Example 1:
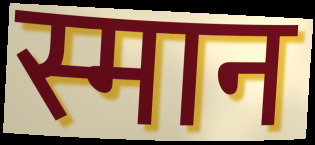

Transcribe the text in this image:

स्मान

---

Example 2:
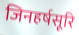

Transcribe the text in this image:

जिनहर्षसूरि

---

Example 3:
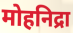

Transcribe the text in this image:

मोहनिद्रा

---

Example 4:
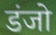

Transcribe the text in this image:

डंजो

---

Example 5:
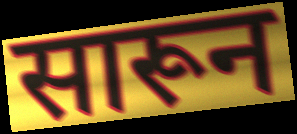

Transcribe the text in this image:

सारून